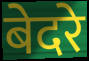
बेदरे